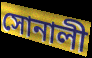
সোনালী